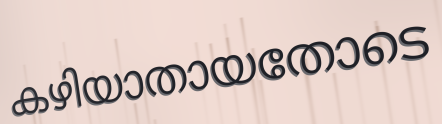
കഴിയാതായതോടെ